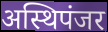
अस्थिपंजर